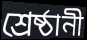
শ্রেষ্ঠানী